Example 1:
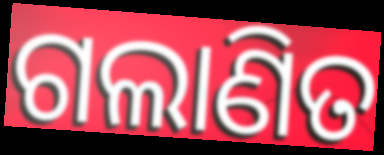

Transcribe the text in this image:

ଗଲାଣିତ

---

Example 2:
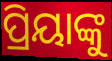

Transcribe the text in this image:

ପ୍ରିୟାଙ୍କୁ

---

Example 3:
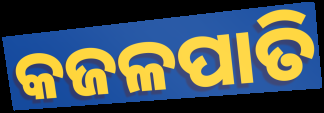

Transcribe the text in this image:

କଜଳପାତି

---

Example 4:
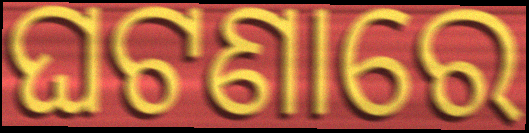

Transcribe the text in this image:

ଘଟଣାରେ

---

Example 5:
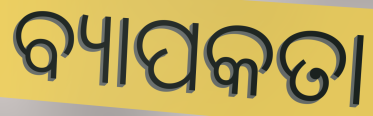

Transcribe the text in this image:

ବ୍ୟାପକତା